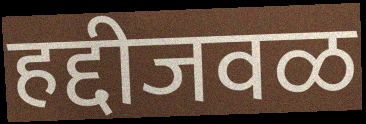
हद्दीजवळ